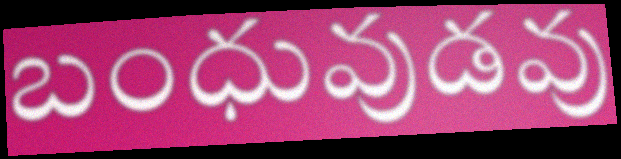
బంధువుడవు